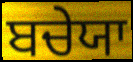
ਬਚੇਯਾ